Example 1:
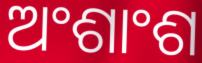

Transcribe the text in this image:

ଅଂଶାଂଶ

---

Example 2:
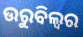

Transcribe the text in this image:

ଉରୁବିଲ୍ଵର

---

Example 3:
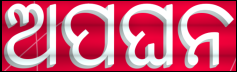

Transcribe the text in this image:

ଅପଘନ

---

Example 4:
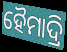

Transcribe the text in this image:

ହୈମାଦ୍ରି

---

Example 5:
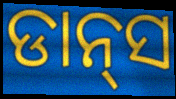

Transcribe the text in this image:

ଡାନ୍‍ସ